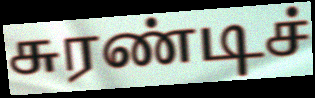
சுரண்டிச்